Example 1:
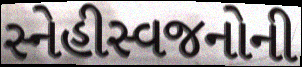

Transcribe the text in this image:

સ્નેહીસ્વજનોની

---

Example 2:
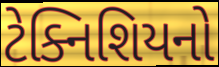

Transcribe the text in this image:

ટેક્નિશિયનો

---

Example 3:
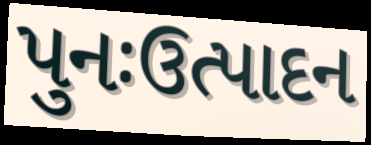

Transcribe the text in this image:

પુનઃઉત્પાદન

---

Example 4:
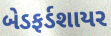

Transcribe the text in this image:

બેડફર્ડશાયર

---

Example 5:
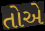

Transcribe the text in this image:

તોએ